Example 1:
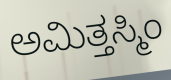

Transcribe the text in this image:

ಅಮಿತ್ತಸ್ಮಿಂ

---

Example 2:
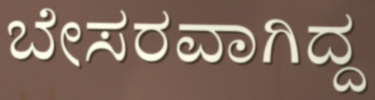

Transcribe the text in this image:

ಬೇಸರವಾಗಿದ್ದ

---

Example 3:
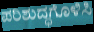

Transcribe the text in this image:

ಪರಿಶುದ್ಧಗೊಳಿಸಿ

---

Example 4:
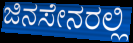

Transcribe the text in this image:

ಜಿನಸೇನರಲ್ಲಿ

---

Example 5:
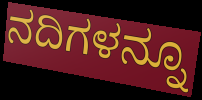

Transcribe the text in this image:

ನದಿಗಳನ್ನೂ